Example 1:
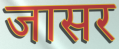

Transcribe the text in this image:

जासर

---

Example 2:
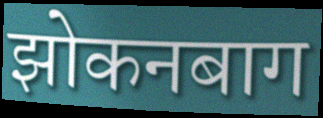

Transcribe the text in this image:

झोकनबाग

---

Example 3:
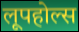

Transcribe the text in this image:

लूपहोल्स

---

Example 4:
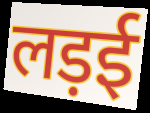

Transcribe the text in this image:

लड़ई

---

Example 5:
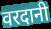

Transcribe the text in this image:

वरदानी